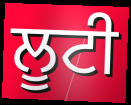
ਲੂਟੀ